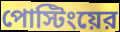
পোস্টিংয়ের